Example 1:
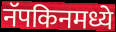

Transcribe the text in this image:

नॅपकिनमध्ये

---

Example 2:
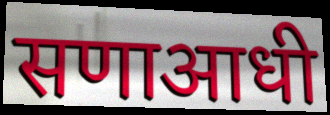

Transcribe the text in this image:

सणाआधी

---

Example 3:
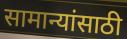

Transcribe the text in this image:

सामान्यांसाठी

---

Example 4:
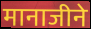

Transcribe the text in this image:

मानाजीने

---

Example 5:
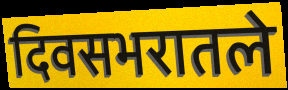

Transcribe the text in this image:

दिवसभरातले